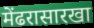
मेंढरासारखा